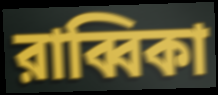
রাব্বিকা